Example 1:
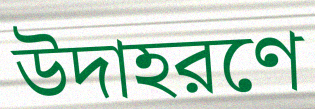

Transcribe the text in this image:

উদাহরণে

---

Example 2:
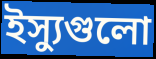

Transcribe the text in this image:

ইস্যুগুলো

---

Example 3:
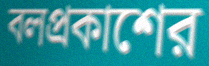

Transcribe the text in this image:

বলপ্রকাশের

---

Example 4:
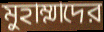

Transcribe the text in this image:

মুহাম্মাদের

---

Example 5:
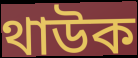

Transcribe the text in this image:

থাউক